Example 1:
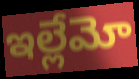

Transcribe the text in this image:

ఇల్లేమో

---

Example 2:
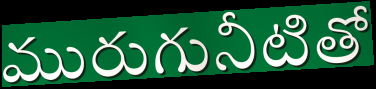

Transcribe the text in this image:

మురుగునీటితో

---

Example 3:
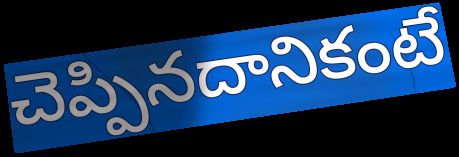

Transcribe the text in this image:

చెప్పినదానికంటే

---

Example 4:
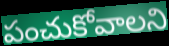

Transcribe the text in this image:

పంచుకోవాలని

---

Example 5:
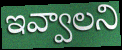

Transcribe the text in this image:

ఇవ్వాలని